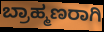
ಬ್ರಾಹ್ಮಣರಾಗಿ